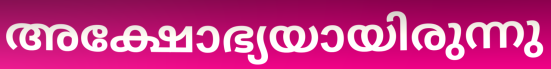
അക്ഷോഭ്യയായിരുന്നു